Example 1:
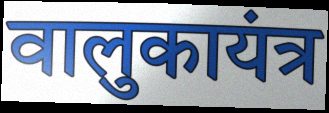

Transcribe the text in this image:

वालुकायंत्र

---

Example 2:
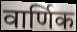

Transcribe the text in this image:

वार्णिक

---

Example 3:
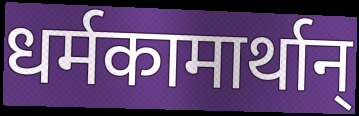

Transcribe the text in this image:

धर्मकामार्थान्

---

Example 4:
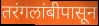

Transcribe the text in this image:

तरंगलांबीपासून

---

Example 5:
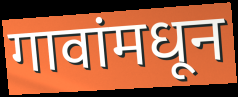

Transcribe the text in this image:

गावांमधून